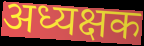
अध्यक्षक